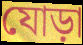
যোড়া